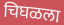
चिघळला